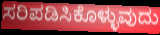
ಸರಿಪಡಿಸಿಕೊಳ್ಳುವುದು